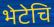
भेटेचि